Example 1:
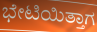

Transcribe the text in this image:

ಭೇಟಿಯಿತ್ತಾಗ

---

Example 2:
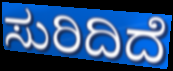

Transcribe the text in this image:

ಸುರಿದಿದೆ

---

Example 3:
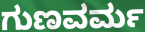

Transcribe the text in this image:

ಗುಣವರ್ಮ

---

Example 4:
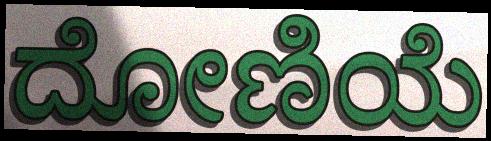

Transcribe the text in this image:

ದೋಣಿಯೆ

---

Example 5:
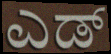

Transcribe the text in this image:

ಎಡ್